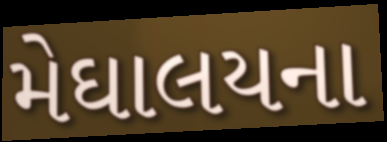
મેઘાલયના